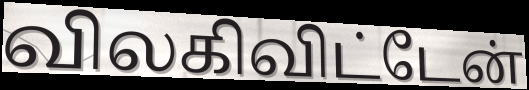
விலகிவிட்டேன்